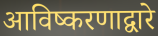
आविष्करणाद्वारे